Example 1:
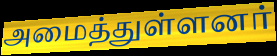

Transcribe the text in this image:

அமைத்துள்ளனர்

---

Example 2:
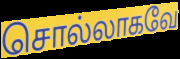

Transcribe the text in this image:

சொல்லாகவே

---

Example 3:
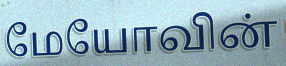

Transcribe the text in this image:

மேயோவின்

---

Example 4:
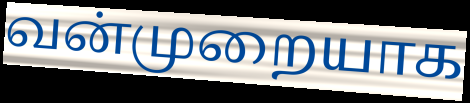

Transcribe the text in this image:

வன்முறையாக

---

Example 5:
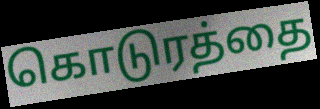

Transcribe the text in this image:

கொடுரத்தை